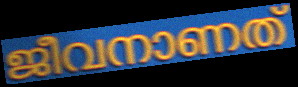
ജീവനാണത്